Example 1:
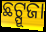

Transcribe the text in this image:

ଛଟ୍ପୂଜା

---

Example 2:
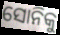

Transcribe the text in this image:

ସୋନିକୁ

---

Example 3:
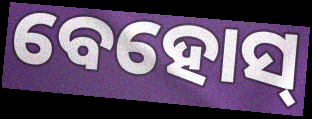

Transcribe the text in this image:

ବେହୋସ୍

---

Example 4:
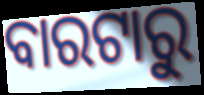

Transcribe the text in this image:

ବାରଟାରୁ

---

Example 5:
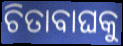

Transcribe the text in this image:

ଚିତାବାଘକୁ